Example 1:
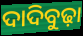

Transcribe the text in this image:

ଦାଦିବୁଢ଼ା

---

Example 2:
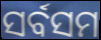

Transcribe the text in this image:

ସର୍ବସମ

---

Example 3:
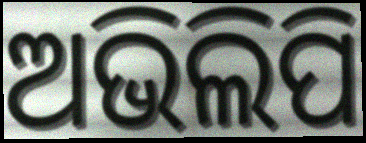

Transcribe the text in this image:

ଅଭିଲିପି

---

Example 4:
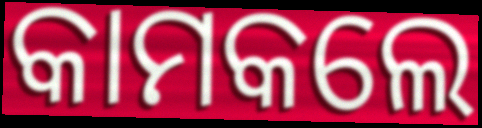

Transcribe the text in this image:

କାମକଲେ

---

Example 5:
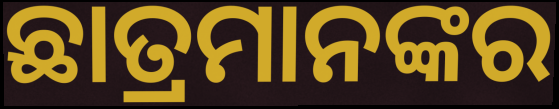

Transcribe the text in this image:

ଛାତ୍ରମାନଙ୍କର